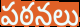
పఠనలు